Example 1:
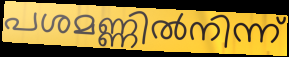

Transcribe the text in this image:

പശമണ്ണിൽനിന്ന്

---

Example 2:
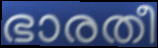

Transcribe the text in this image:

ഭാരതീ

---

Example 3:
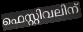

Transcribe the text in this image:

ഫെസ്റ്റിവലിന്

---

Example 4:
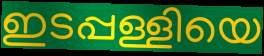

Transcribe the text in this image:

ഇടപ്പള്ളിയെ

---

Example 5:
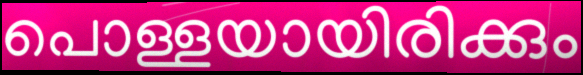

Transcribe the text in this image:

പൊള്ളയായിരിക്കും